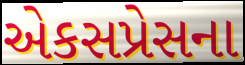
એકસપ્રેસના